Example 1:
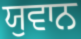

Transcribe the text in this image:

ਯੁਵਾਨ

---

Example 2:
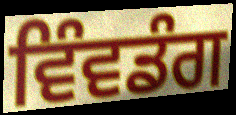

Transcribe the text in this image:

ਵਿੰਵਡੰਗ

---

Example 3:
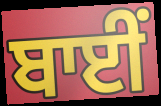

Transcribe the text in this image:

ਬਾਈਂ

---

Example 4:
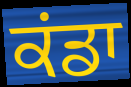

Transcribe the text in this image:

ਕਂਡਾ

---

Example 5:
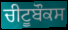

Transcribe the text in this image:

ਚੀਟੂਬੌਕਸ